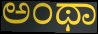
ಅಂಥಾ